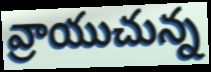
వ్రాయుచున్న